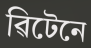
ৱিটেনে